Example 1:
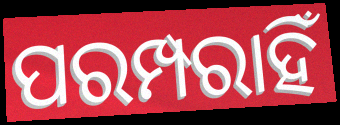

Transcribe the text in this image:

ପରମ୍ପରାହିଁ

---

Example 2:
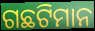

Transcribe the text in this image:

ଗଛଟିମାନ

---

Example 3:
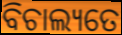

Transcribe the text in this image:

ବିଚାଲ୍ୟତେ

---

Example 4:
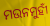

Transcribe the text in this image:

ମଉନମୁହୀଁ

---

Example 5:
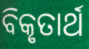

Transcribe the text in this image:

ବିକୃତାର୍ଥ